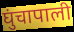
घुंचापाली